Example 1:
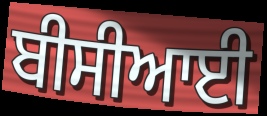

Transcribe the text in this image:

ਬੀਸੀਆਈ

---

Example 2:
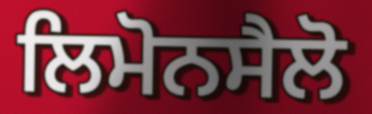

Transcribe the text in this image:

ਲਿਮੋਨਸੈਲੋ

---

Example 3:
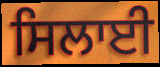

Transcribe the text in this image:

ਸਿਲਾਈ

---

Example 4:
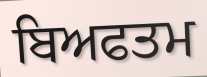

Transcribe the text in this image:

ਬਿਅਫਤਮ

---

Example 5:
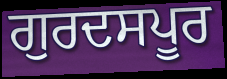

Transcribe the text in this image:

ਗੁਰਦਸਪੂਰ